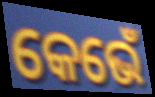
କେଭେଁ